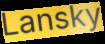
Lansky